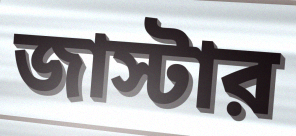
জাস্টার